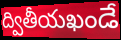
ద్వితీయఖండే